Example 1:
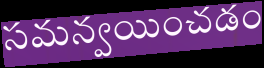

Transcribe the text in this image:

సమన్వయించడం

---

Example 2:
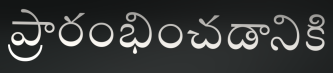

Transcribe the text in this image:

ప్రారంభించడానికి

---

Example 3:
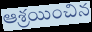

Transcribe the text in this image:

ఆశ్రయించిన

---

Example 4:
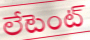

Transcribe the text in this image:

లేటెంట్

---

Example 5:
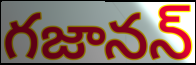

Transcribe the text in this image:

గజానన్